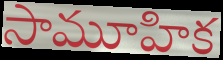
సామూహిక